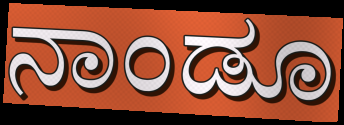
ನಾಂಡೂ